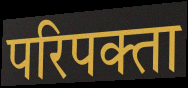
परिपक्ता